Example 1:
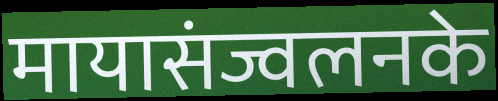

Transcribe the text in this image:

मायासंज्वलनके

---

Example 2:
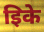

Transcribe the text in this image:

इिके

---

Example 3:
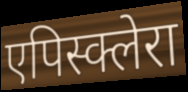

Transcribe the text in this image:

एपिस्क्लेरा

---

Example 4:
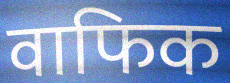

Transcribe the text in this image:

वाफिक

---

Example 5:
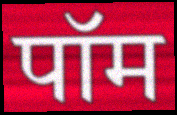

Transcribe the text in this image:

पॉम